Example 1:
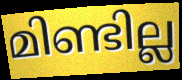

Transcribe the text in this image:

മിണ്ടില്ല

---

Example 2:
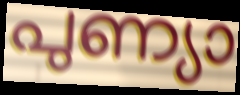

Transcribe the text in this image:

പുണ്യാ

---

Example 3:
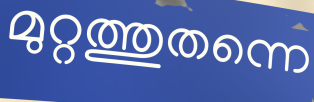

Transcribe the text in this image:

മുറ്റത്തുതന്നെ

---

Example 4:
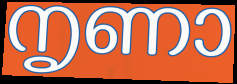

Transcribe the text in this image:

നൃണാ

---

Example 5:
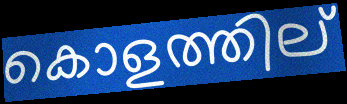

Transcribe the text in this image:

കൊളത്തില്